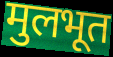
मुलभूत